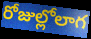
రోజుల్లోలాగ